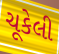
ચૂકેલી